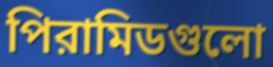
পিরামিডগুলো